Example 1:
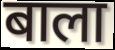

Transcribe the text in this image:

बाला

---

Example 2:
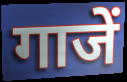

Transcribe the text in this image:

गाजें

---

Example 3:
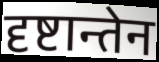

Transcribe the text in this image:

दृष्टान्तेन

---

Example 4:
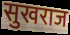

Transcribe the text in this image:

सुखराज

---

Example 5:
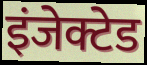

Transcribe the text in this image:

इंजेक्टेड